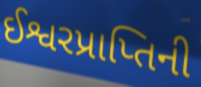
ઈશ્વરપ્રાપ્તિની